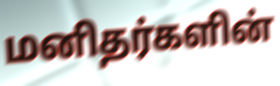
மனிதர்களின்